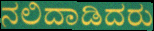
ನಲಿದಾಡಿದರು